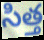
సిత్త